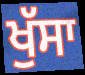
ਖੁੱਸਾ